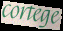
cortege